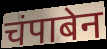
चंपाबेन